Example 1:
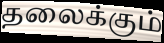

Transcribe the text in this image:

தலைக்கும்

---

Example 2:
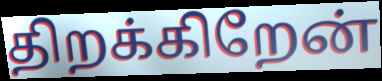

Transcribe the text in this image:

திறக்கிறேன்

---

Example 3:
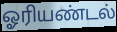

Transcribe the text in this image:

ஓரியண்டல்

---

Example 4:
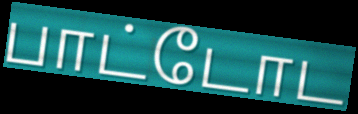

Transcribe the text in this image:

பாட்டோட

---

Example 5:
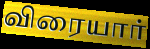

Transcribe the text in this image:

விரையார்